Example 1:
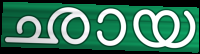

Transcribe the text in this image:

ഛായ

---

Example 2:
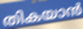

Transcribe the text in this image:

തികയാൻ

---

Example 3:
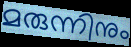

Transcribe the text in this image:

മരുന്നിനും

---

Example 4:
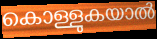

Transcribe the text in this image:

കൊള്ളുകയാൽ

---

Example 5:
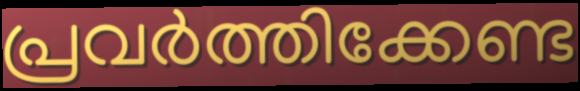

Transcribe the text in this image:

പ്രവർത്തിക്കേണ്ട